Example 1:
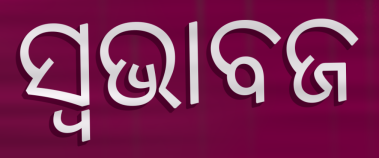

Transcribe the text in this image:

ସ୍ୱଭାବଜ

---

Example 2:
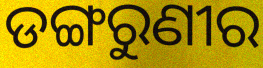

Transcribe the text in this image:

ଡଙ୍ଗରୁଣୀର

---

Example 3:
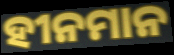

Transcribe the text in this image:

ହୀନମାନ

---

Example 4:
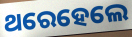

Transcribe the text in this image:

ଥରେହେଲେ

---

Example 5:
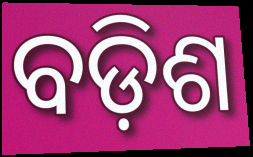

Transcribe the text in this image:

ବଡ଼ିଶ